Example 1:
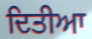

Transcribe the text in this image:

ਦਿਤੀਆ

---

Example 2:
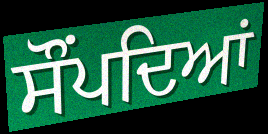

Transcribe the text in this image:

ਸੌਂਪਦਿਆਂ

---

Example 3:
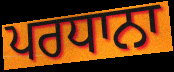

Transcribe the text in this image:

ਪਰਧਾਨਾ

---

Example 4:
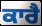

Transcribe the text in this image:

ਕਾਰੈ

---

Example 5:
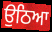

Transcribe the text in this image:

ਉਠਿਆ